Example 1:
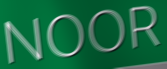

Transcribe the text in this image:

NOOR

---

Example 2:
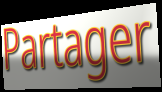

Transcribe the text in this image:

Partager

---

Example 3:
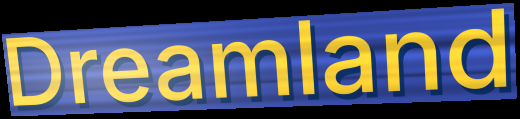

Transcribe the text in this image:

Dreamland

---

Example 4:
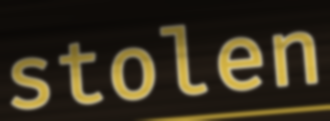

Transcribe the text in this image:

stolen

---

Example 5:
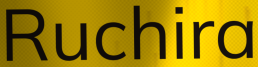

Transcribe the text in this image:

Ruchira